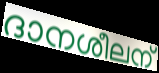
ദാനശീലന്